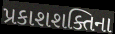
પ્રકાશશક્તિના